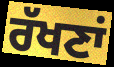
ਰੱਖਣਾਂ